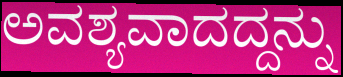
ಅವಶ್ಯವಾದದ್ದನ್ನು